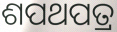
ଶପଥପତ୍ର